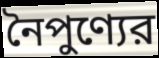
নৈপুণ্যের